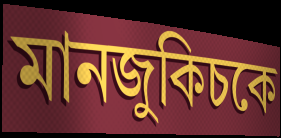
মানজুকিচকে